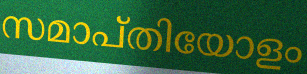
സമാപ്തിയോളം